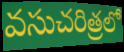
వసుచరిత్రలో